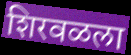
शिरवळला